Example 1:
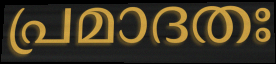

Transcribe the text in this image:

പ്രമാദതഃ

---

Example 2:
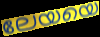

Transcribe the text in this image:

ലേയയെ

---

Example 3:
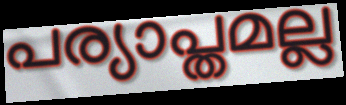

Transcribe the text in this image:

പര്യാപ്തമല്ല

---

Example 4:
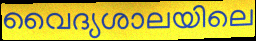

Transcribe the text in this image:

വൈദ്യശാലയിലെ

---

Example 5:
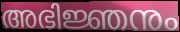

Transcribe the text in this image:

അഭിജ്ഞനും